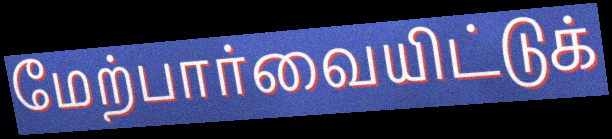
மேற்பார்வையிட்டுக்